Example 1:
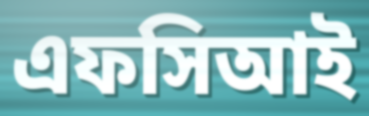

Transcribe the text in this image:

এফসিআই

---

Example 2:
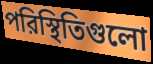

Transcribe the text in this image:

পরিস্থিতিগুলো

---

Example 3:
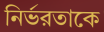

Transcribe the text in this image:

নির্ভরতাকে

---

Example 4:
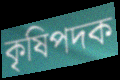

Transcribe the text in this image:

কৃষিপদক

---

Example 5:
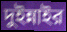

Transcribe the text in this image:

দুইন্নাইর